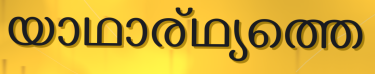
യാഥാര്ഥ്യത്തെ